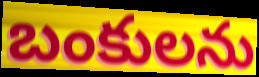
బంకులను